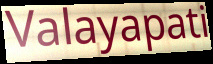
Valayapati